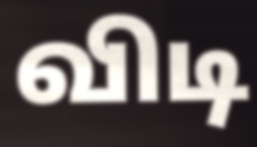
விடி